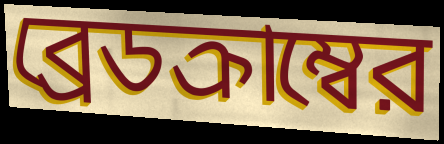
ব্রেডক্রাম্বের